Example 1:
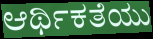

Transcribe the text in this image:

ಆರ್ಥಿಕತೆಯು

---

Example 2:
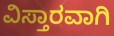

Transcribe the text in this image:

ವಿಸ್ತಾರವಾಗಿ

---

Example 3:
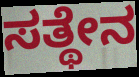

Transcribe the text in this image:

ಸತ್ಥೇನ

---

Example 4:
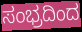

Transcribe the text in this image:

ಸಂಭ್ರದಿಂದ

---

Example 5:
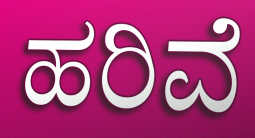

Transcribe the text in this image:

ಹರಿವೆ